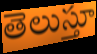
తెలుస్తూ